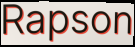
Rapson